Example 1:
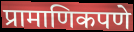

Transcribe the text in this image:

प्रामाणिकपणे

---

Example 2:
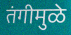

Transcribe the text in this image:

तंगीमुळे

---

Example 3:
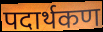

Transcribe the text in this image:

पदार्थकण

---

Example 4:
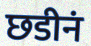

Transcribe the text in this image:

छडीनं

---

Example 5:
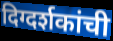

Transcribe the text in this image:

दिग्दर्शकांची